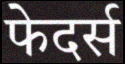
फेदर्स